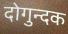
दोगुन्दक